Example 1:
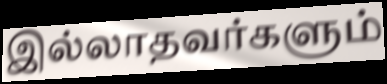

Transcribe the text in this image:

இல்லாதவர்களும்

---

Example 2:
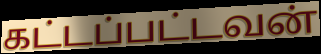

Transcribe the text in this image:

கட்டப்பட்டவன்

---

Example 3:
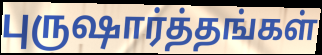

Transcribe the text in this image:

புருஷார்த்தங்கள்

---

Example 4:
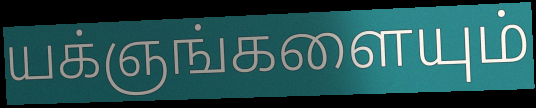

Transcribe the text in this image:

யக்ஞங்களையும்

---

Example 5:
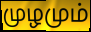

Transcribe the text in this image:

முழமும்